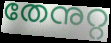
തേനുറ്റ